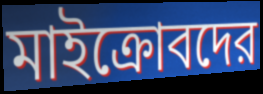
মাইক্রোবদের